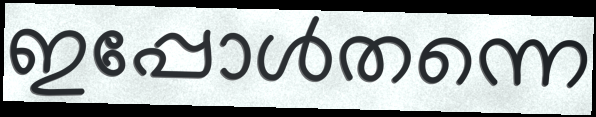
ഇപ്പോൾതന്നെ